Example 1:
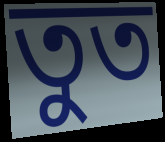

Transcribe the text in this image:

তুত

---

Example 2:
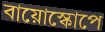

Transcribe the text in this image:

বায়োস্কোপে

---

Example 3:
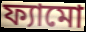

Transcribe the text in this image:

ফ্যামো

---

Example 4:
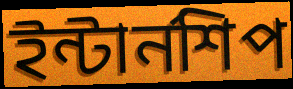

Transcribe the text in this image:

ইন্টার্নশিপ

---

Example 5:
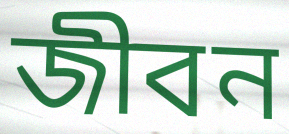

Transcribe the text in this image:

জীবন